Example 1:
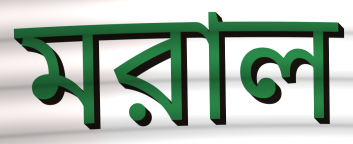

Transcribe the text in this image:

মরাল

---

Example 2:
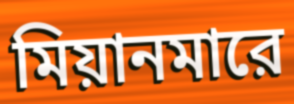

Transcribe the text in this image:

মিয়ানমারে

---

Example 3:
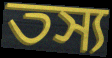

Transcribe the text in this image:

তস্য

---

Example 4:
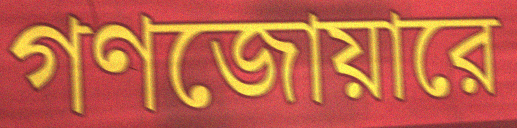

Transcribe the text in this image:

গণজোয়ারে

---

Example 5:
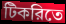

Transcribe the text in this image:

টিকরিতে